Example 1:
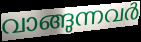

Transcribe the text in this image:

വാങ്ങുന്നവർ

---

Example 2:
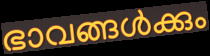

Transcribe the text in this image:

ഭാവങ്ങൾക്കും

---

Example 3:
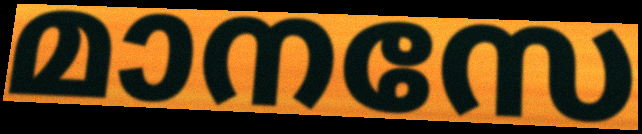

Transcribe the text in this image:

മാനസേ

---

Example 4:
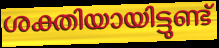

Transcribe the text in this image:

ശക്തിയായിട്ടുണ്ട്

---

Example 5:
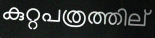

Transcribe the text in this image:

കുറ്റപത്രത്തില്